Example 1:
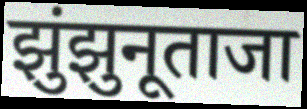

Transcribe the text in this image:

झुंझुनूताजा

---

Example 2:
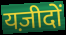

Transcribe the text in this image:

यज़ीदों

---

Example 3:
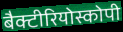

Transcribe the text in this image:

बैक्टीरियोस्कोपी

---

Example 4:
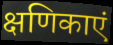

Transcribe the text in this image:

क्षणिकाएं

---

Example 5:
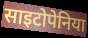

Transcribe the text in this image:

साइटोपेनिया